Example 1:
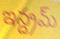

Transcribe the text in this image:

ఇన్ద్రమ్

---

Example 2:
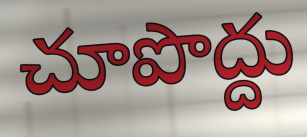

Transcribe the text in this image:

చూపొద్దు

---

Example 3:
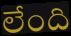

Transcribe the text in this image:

లేంది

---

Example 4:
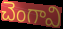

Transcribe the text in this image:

చెంగావి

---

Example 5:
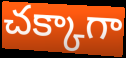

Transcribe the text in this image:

చక్కాగా